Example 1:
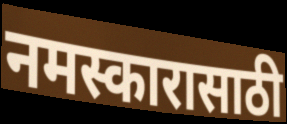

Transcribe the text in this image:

नमस्कारासाठी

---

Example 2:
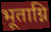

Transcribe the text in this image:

भूताग्नि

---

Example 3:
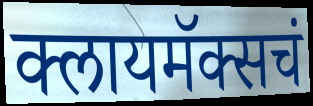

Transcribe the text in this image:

क्लायमॅक्सचं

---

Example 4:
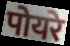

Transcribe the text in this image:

पोयरे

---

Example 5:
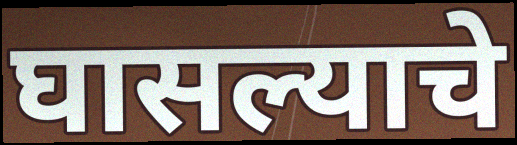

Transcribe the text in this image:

घासल्याचे